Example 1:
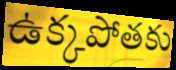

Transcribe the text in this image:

ఉక్కపోతకు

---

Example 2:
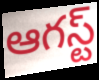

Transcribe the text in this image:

ఆగస్ట్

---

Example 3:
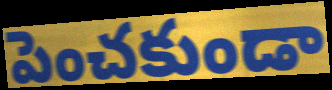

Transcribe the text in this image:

పెంచకుండా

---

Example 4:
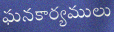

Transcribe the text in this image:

ఘనకార్యములు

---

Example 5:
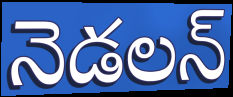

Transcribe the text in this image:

నెడలన్